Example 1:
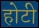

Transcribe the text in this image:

होटी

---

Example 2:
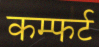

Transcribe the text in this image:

कम्फर्ट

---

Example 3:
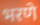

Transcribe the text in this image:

भरणे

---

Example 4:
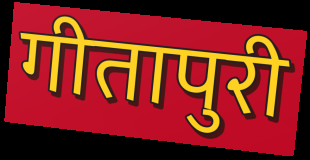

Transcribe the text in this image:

गीतापुरी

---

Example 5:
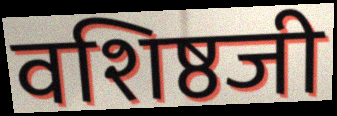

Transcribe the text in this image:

वशिष्ठजी